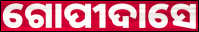
ଗୋପୀଦାସେ